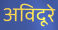
अविदूरे